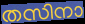
തസിനാ